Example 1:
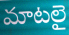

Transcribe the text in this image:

మాటలై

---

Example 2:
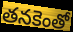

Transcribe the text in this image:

తనకెంతో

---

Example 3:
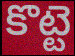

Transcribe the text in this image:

కొట్టె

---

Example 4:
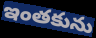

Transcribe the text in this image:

ఇంతకును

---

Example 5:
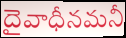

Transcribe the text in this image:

దైవాధీనమనీ